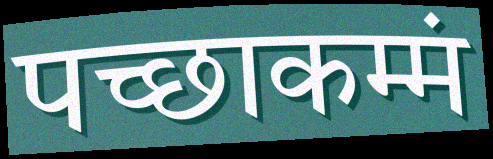
पच्छाकम्मं